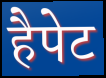
हैपेट